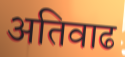
अतिवाढ